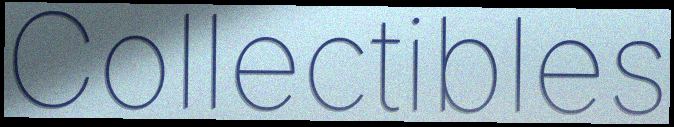
Collectibles